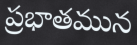
ప్రభాతమున